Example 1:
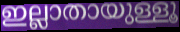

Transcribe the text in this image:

ഇല്ലാതായുള്ളൂ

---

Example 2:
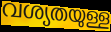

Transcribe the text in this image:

വശ്യതയുള്ള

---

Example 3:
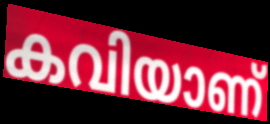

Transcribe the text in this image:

കവിയാണ്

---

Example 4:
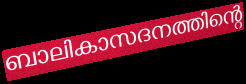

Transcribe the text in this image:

ബാലികാസദനത്തിന്റെ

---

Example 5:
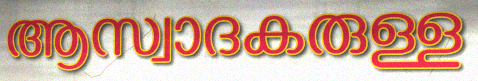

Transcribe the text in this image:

ആസ്വാദകരുള്ള